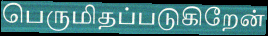
பெருமிதப்படுகிறேன்